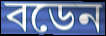
বডেন